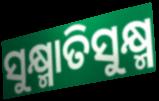
ସୁକ୍ଷ୍ମାତିସୁକ୍ଷ୍ମ